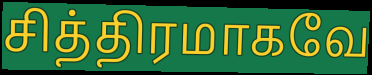
சித்திரமாகவே